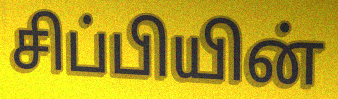
சிப்பியின்